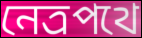
নেত্রপথে